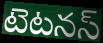
టెటనస్